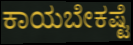
ಕಾಯಬೇಕಷ್ಟೆ